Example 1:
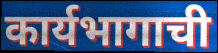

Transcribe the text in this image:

कार्यभागाची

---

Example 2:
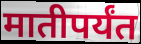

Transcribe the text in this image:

मातीपर्यंत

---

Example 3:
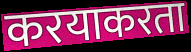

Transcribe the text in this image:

करयाकरता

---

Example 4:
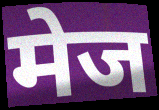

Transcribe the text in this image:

मेज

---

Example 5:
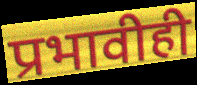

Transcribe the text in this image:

प्रभावीही